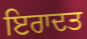
ਇਰਾਦਤ